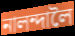
নালন্দালৈ